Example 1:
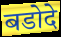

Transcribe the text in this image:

बडोदे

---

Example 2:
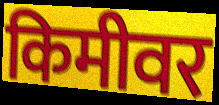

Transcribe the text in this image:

किमीवर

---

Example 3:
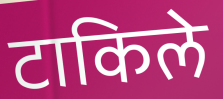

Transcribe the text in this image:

टाकिले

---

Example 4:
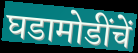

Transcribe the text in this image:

घडामोडींचें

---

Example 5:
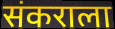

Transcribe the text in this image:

संकराला